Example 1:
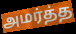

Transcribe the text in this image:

அமர்த்த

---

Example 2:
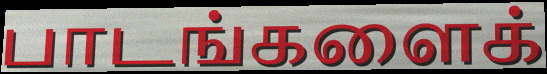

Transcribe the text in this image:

பாடங்களைக்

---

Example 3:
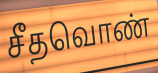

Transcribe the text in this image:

சீதவொண்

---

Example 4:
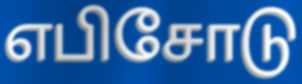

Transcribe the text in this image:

எபிசோடு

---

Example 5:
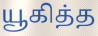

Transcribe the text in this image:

யூகித்த